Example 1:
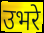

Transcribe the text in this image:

उभरे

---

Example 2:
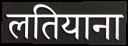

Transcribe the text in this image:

लतियाना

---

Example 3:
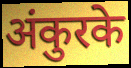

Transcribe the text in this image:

अंकुरके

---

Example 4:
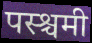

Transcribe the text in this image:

पस्श्चमी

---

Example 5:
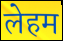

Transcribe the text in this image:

लेहम